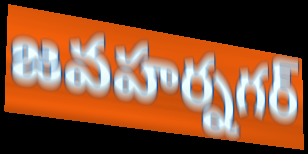
జవహర్నగర్